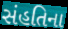
સંહતિના